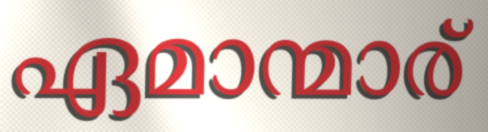
ഏമാന്മാര്